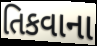
તિકવાના